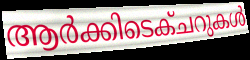
ആർക്കിടെക്ചറുകൾ